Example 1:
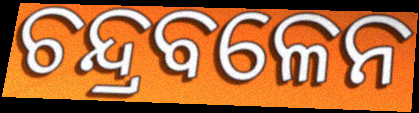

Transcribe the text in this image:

ଚନ୍ଦ୍ରବଳେନ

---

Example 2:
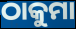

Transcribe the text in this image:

ଠାକୁମା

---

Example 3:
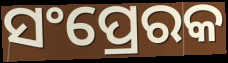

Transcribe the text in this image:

ସଂପ୍ରେରକ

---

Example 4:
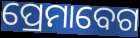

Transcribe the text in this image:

ପ୍ରେମାବେଗ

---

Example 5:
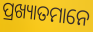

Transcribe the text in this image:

ପ୍ରଖ୍ୟାତମାନେ